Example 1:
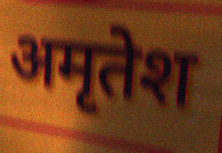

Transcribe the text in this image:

अमृतेश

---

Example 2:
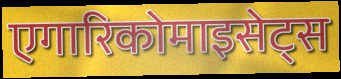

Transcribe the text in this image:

एगारिकोमाइसेट्स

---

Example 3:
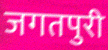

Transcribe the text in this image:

जगतपुरी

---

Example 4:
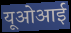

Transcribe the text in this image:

यूओआई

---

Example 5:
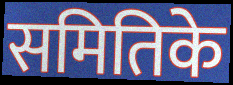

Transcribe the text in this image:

समितिके